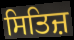
ਸਿਤਿਜ਼